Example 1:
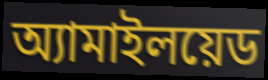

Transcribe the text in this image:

অ্যামাইলয়েড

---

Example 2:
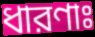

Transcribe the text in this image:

ধারণাঃ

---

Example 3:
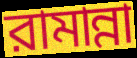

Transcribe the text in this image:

রামান্না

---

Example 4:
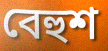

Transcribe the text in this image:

বেহুশ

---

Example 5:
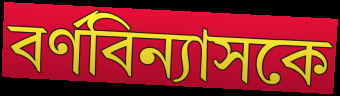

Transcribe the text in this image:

বর্ণবিন্যাসকে